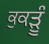
ਕੁਕੜੂੰ